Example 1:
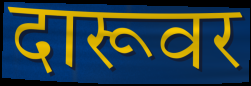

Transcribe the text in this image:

दारूवर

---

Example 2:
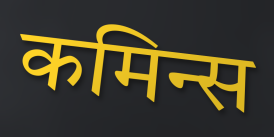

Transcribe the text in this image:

कमिन्स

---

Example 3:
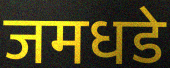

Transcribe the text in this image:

जमधडे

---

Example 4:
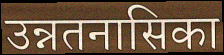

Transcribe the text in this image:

उन्नतनासिका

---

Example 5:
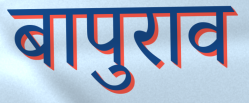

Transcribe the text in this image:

बापुराव